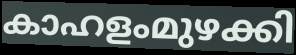
കാഹളംമുഴക്കി